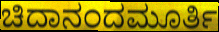
ಚಿದಾನಂದಮೂರ್ತಿ